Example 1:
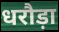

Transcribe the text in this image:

धरौड़ा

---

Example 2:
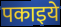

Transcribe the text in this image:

पकाइये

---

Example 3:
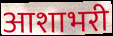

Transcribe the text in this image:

आशाभरी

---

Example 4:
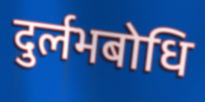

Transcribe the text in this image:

दुर्लभबोधि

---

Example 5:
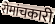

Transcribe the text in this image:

रोमांचकारी